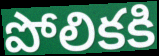
పోలికకి